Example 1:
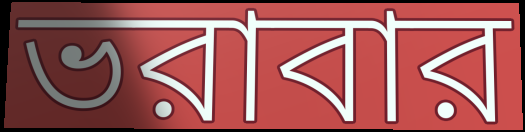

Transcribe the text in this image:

ভরাবার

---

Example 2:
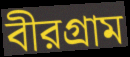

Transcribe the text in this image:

বীরগ্রাম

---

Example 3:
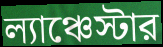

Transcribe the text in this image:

ল্যাঞ্চেস্টার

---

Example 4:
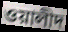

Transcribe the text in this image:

ওয়ালীদ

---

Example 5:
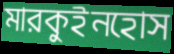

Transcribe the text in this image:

মারকুইনহোস